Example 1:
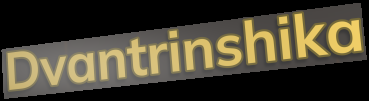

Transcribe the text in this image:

Dvantrinshika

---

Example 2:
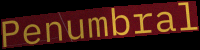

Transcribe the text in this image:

Penumbral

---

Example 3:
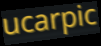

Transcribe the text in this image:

ucarpic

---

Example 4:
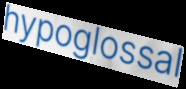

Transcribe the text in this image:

hypoglossal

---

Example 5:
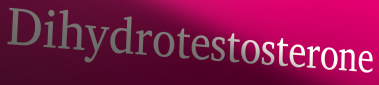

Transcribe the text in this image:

Dihydrotestosterone